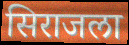
सिराजला